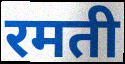
रमती